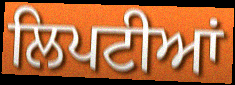
ਲਿਪਟੀਆਂ